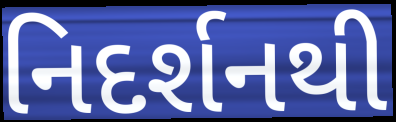
નિદર્શનથી